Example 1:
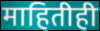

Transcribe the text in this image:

माहितीही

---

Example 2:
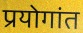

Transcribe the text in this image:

प्रयोगांत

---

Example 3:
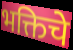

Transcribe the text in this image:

भक्तिचे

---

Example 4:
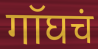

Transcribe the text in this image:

गॉघचं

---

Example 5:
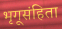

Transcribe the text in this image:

भृगूसंहिता